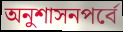
অনুশাসনপর্বে